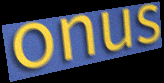
onus